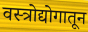
वस्त्रोद्योगातून